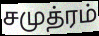
சமுத்ரம்